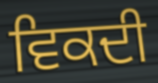
ਵਿਕਦੀ